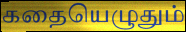
கதையெழுதும்